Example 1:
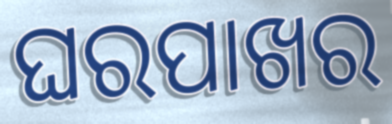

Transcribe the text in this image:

ଘରପାଖର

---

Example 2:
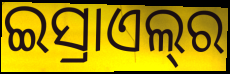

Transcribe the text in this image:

ଇସ୍ରାଏଲ୍‌ର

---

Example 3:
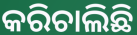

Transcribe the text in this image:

କରିଚାଲିଛି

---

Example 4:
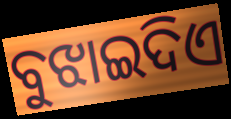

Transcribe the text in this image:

ବୁଝାଇଦିଏ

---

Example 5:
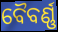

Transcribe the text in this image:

ବୈବର୍ଣ୍ଣ